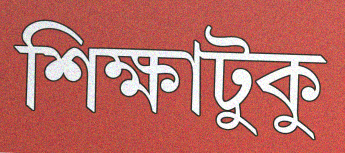
শিক্ষাটুকু